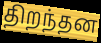
திறந்தன